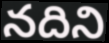
నదిని